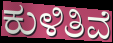
ಕುಳಿತಿವೆ